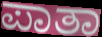
ಪಾತಾ